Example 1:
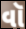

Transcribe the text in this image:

વૉ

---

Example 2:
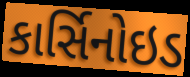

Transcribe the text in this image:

કાર્સિનોઇડ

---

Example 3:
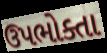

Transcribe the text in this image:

ઉપભોક્તા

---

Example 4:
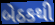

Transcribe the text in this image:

બેઠકથી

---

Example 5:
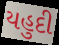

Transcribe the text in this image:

યહુદી